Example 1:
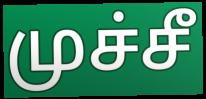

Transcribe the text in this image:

முச்சீ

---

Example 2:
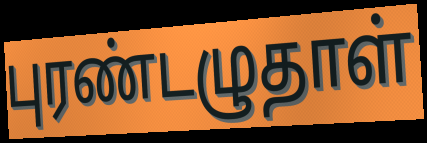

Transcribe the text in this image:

புரண்டழுதாள்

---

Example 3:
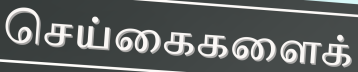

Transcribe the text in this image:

செய்கைகளைக்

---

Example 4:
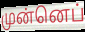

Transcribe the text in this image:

முன்னெப்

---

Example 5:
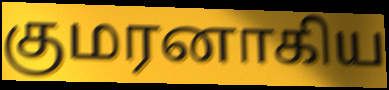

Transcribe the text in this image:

குமரனாகிய